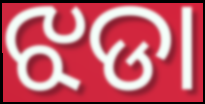
ଝଡା